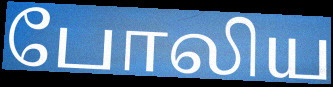
போலிய